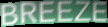
BREEZE